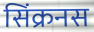
सिंक्रनस